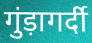
गुंड़ागर्दी